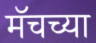
मॅचच्या